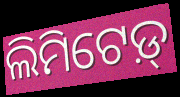
ଲିମିଟେଡ଼୍